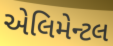
એલિમેન્ટલ